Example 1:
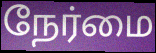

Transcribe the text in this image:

நேர்மை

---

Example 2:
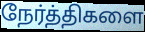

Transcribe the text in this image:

நேர்த்திகளை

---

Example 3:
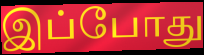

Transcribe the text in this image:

இப்போது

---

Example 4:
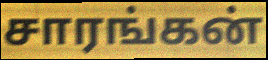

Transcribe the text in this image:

சாரங்கன்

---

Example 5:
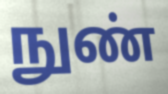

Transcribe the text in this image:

நுண்